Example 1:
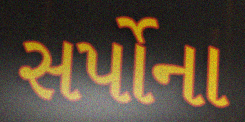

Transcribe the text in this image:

સર્પોના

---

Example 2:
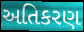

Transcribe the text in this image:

અતિકરણ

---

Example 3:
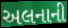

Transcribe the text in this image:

અલનાની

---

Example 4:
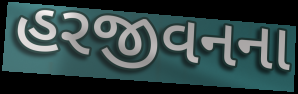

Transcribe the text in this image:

હરજીવનના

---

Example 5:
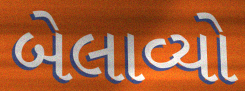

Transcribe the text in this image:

બેલાવ્યો